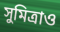
সুমিত্রাও